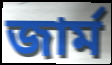
জার্ম